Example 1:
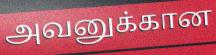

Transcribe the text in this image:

அவனுக்கான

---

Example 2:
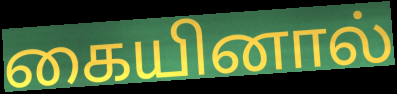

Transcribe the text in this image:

கையினால்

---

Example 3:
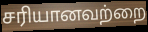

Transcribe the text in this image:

சரியானவற்றை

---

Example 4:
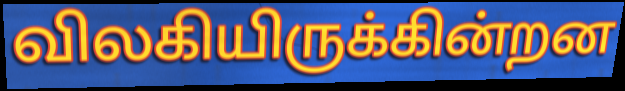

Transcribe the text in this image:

விலகியிருக்கின்றன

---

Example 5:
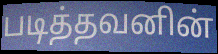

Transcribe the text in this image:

படித்தவனின்